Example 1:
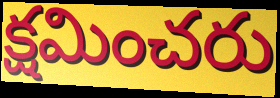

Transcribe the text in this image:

క్షమించరు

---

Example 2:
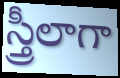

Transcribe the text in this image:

స్త్రీలాగా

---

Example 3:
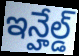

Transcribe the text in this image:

ఇన్హేల్డ్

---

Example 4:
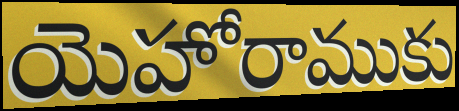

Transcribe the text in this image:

యెహోరాముకు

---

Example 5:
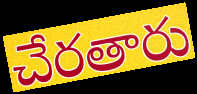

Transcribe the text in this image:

చేరతారు